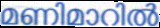
മണിമാറിൽ